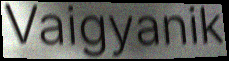
Vaigyanik